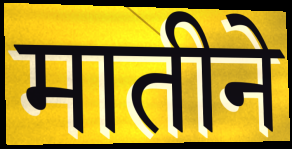
मातीने